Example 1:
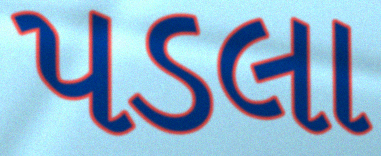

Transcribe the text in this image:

પડલા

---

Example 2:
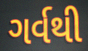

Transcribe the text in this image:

ગર્વથી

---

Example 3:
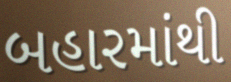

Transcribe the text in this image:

બહારમાંથી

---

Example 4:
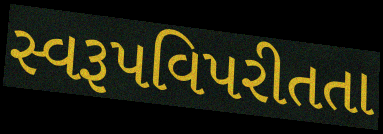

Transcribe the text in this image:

સ્વરૂપવિપરીતતા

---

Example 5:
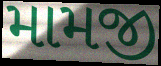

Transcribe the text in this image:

મામજી